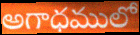
అగాధములో